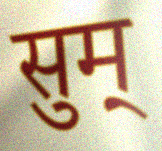
सुम्